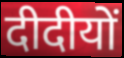
दीदीयों